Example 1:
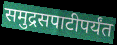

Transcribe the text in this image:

समुद्रसपाटीपर्यंत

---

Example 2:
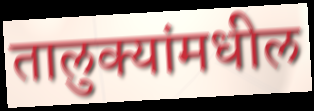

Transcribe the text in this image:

तालुक्यांमधील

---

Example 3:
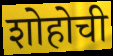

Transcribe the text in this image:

शोहोची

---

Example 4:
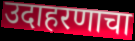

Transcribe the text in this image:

उदाहरणाचा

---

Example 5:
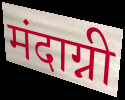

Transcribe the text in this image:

मंदाग्नी